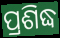
ପ୍ରଶିଦ୍ଧ